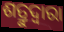
ଶତ୍ରୁଦ୍ଵାରା